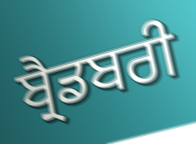
ਬ੍ਰੈਡਬਰੀ